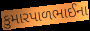
કુમારપાળભાઈના